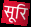
सूरि